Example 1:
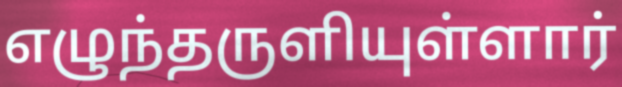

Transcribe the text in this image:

எழுந்தருளியுள்ளார்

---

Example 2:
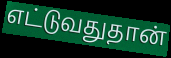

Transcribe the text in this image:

எட்டுவதுதான்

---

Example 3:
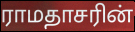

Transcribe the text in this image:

ராமதாசரின்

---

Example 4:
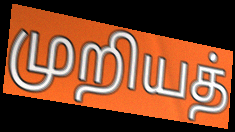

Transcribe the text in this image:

முறியத்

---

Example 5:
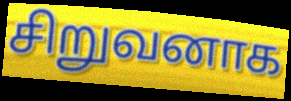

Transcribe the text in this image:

சிறுவனாக